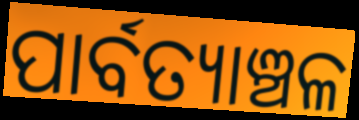
ପାର୍ବତ୍ୟାଞ୍ଚଳ